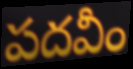
పదవీం